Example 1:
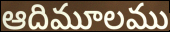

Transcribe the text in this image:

ఆదిమూలము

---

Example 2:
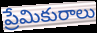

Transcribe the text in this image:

ప్రేమికురాలు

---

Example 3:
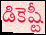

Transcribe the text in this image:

డికెష్టీ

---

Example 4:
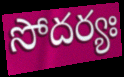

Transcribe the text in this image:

సోదర్యః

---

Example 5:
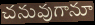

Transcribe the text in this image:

చనువుగానూ